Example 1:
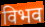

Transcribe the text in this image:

विभव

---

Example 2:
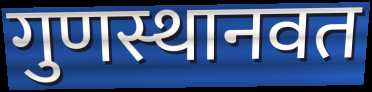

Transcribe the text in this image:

गुणस्थानवत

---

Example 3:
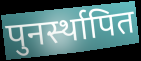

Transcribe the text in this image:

पुनर्स्थापित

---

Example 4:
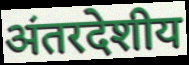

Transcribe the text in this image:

अंतरदेशीय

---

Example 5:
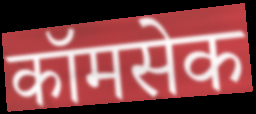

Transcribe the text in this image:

कॉमसेक